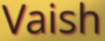
Vaish